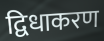
द्विधाकरण